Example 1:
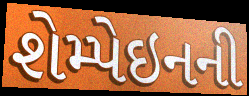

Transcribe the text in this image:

શેમ્પેઇનની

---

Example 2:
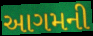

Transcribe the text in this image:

આગમની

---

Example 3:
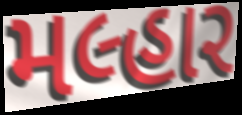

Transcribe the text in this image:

મલ્હાર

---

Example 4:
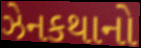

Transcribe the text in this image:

ઝેનકથાનો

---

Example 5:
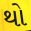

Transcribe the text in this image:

થો